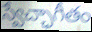
స్వేచ్ఛాగీతం